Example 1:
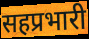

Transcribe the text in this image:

सहप्रभारी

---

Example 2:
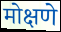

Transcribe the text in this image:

मोक्षणे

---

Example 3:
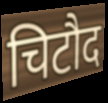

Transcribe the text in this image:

चिटौद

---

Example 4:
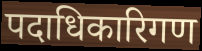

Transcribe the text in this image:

पदाधिकारिगण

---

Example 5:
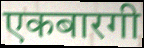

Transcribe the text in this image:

एकबारगी